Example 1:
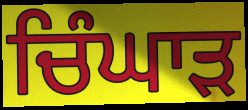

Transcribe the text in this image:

ਚਿੰਘਾੜ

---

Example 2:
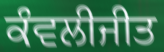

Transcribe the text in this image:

ਕੰਵਲੀਜੀਤ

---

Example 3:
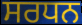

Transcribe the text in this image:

ਸਰਧਨ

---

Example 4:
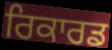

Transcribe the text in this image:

ਰਿਕਾਰਡ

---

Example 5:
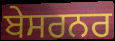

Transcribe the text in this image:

ਬੇਸਰਨਰ